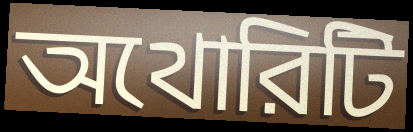
অথোরিটি